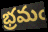
భ్రమఁ